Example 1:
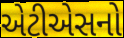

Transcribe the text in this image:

એટીએસનો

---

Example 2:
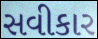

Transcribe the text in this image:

સવીકાર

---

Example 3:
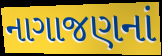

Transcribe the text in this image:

નાગાજણનાં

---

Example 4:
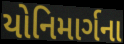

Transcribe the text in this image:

યોનિમાર્ગના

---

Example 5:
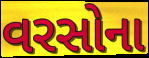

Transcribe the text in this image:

વરસોના